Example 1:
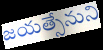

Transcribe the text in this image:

జయత్సేనుని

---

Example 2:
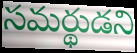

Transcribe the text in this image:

సమర్థుడని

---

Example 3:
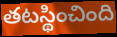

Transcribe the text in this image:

తటస్థించింది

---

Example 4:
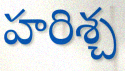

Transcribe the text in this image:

హరిశ్చ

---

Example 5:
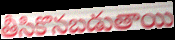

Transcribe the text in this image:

తీసికొనబడుతాయి